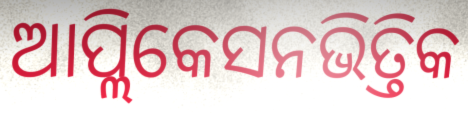
ଆପ୍ଲିକେସନଭିତ୍ତିକ